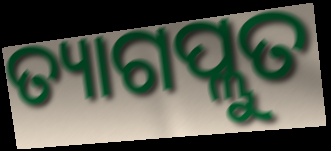
ତ୍ୟାଗପ୍ଲୁତ